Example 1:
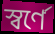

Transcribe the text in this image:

স্বর্ণে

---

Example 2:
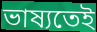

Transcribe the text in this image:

ভাষ্যতেই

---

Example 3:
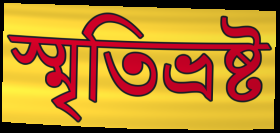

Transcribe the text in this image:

স্মৃতিভ্রষ্ট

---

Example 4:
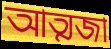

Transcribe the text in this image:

আত্মজা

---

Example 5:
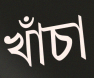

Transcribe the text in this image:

খাঁচা